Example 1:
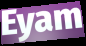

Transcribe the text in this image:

Eyam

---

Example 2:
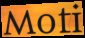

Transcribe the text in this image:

Moti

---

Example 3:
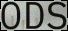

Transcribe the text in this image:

ODS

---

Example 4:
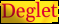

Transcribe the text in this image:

Deglet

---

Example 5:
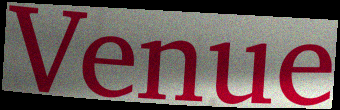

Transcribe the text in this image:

Venue